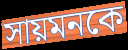
সায়মনকে